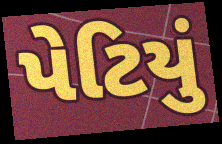
પેટિયું